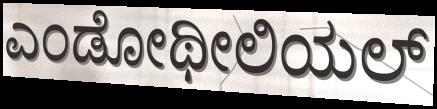
ಎಂಡೋಥೀಲಿಯಲ್